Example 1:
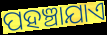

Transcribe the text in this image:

ପହଞ୍ଚାଯାଏ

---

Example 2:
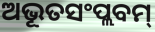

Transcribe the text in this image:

ଅଭୂତସଂପ୍ଲବମ୍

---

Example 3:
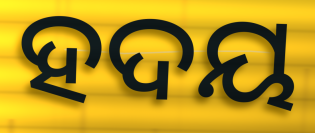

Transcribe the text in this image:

ହଦୟ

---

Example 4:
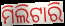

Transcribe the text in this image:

ମିଲିଟାରି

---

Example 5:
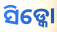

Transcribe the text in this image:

ସିଡ୍କୋ